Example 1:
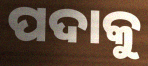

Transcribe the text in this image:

ପଦାକୁ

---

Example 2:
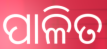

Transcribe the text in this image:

ପାଳିତ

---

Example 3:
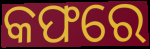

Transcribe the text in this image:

କଫରେ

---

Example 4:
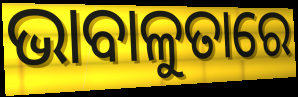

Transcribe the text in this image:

ଭାବାଳୁତାରେ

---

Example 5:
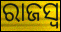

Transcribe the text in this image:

ରାଜସ୍ୱ